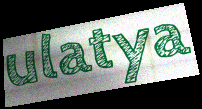
ulatya